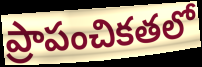
ప్రాపంచికతలో